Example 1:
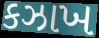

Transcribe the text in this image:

કઝાખ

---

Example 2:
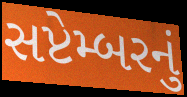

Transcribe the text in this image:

સપ્ટેમ્બરનું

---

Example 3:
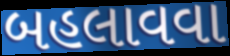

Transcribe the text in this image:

બહલાવવા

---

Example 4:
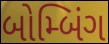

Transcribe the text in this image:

બોમ્બિંગ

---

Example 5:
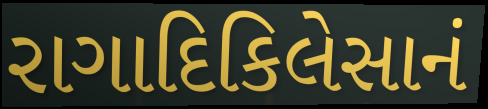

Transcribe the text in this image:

રાગાદિકિલેસાનં